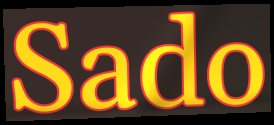
Sado